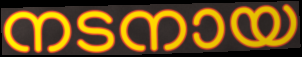
നടനായ